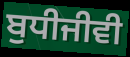
ਬੁਧੀਜੀਵੀ